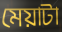
মেয়াটা